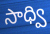
సాధ్వి